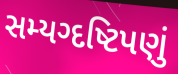
સમ્યગ્દષ્ટિપણું